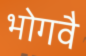
भोगवै